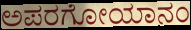
ಅಪರಗೋಯಾನಂ